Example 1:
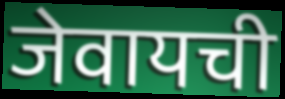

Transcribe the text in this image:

जेवायची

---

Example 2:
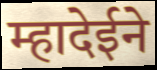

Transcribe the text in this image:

म्हादेईने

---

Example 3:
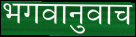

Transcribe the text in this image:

भगवानुवाच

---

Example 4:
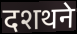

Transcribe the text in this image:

दशथने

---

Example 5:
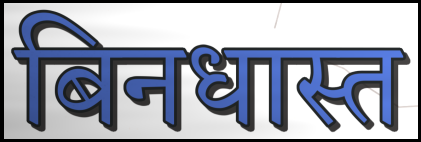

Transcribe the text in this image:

बिनधास्त